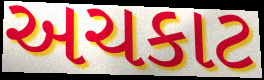
અચકાટ